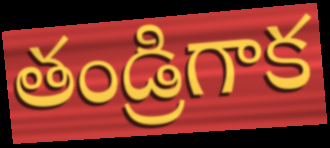
తండ్రిగాక